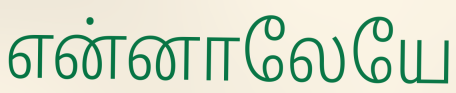
என்னாலேயே